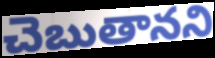
చెబుతానని